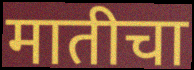
मातीचा